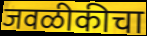
जवळीकीचा